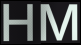
HM